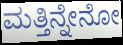
ಮತ್ತಿನ್ನೇನೋ